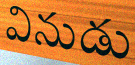
వినుడు